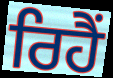
ਰਿਹੈਂ